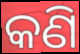
କଣି